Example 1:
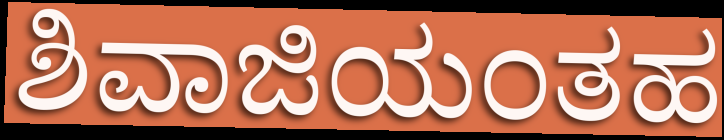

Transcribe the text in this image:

ಶಿವಾಜಿಯಂತಹ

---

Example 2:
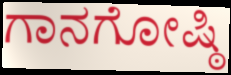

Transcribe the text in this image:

ಗಾನಗೋಷ್ಠಿ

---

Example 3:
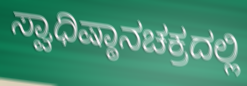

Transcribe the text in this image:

ಸ್ವಾಧಿಷ್ಠಾನಚಕ್ರದಲ್ಲಿ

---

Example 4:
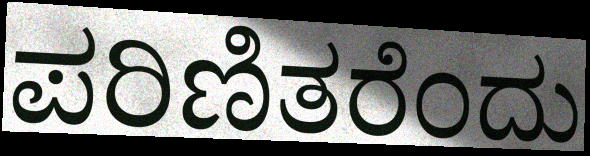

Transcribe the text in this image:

ಪರಿಣಿತರೆಂದು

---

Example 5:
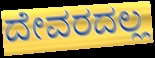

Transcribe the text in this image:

ದೇವರದಲ್ಲ